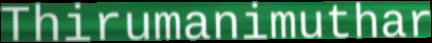
Thirumanimuthar